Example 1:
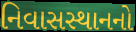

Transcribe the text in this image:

નિવાસસ્થાનનો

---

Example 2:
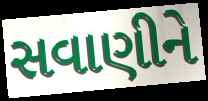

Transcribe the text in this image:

સવાણીને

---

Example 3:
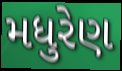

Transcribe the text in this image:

મધુરેણ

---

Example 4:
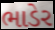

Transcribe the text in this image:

ભાડેર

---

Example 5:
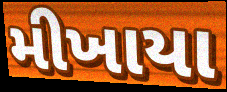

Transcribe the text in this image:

મીખાયા